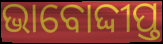
ଭାବୋଦ୍ଦୀପ୍ତ